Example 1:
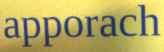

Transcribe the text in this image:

apporach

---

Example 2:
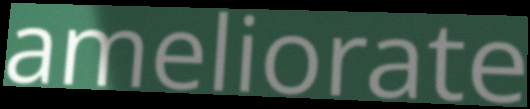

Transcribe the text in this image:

ameliorate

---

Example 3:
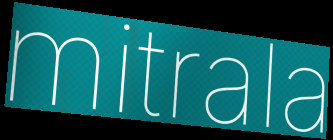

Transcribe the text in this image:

mitrala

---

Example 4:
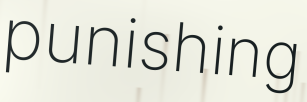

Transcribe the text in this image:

punishing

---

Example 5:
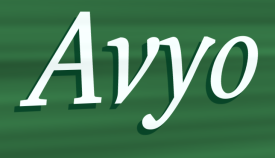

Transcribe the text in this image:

Avyo